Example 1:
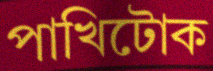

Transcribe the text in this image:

পাখিটোক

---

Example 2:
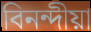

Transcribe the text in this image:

বিনন্দীয়া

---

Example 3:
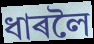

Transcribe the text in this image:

ধাৰলৈ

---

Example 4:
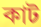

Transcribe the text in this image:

কাট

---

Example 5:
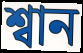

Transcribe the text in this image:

শ্বান